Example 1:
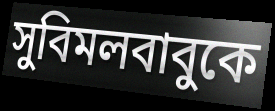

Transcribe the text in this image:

সুবিমলবাবুকে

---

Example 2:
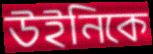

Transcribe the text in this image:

উইনিকে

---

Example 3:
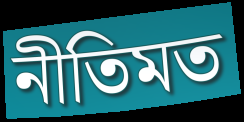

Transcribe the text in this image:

নীতিমত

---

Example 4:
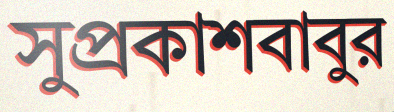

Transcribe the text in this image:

সুপ্রকাশবাবুর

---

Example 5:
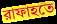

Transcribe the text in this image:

রাফাহতে